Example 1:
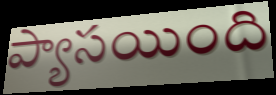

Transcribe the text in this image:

ప్యాసయింది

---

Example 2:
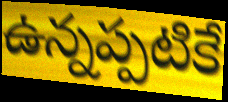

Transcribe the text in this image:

ఉన్నప్పటికే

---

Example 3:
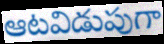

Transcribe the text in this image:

ఆటవిడుపుగా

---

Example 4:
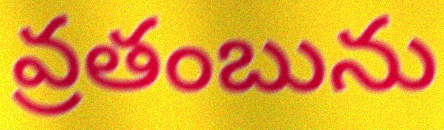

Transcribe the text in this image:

వ్రతంబును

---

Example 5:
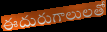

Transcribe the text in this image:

ఈదురుగాలులతో